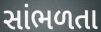
સાંભળતા